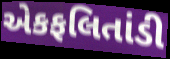
એકફલિતાંડી